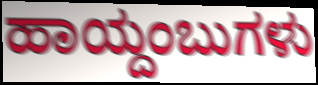
ಹಾಯ್ದಂಬುಗಳು